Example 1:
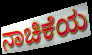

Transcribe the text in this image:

ನಾಚಿಕೆಯ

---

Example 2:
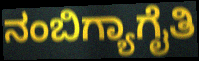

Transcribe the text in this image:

ನಂಬಿಗ್ಯಾಗೈತಿ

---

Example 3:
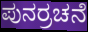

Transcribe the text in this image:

ಪುನರ್ರಚನೆ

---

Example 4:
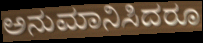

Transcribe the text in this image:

ಅನುಮಾನಿಸಿದರೂ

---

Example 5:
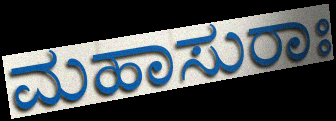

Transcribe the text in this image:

ಮಹಾಸುರಾಃ